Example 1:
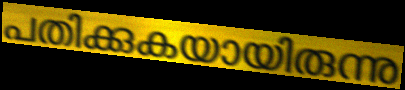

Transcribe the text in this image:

പതിക്കുകയായിരുന്നു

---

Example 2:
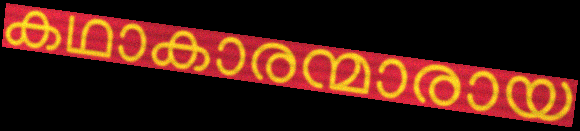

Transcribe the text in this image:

കഥാകാരന്മാരായ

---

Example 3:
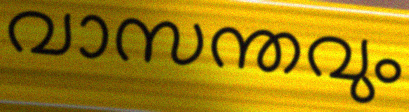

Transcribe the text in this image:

വാസന്തവും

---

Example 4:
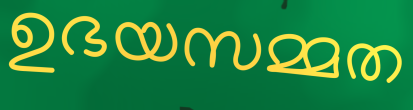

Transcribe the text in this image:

ഉഭയസമ്മത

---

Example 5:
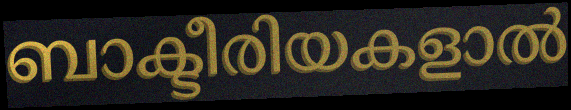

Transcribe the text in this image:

ബാക്ടീരിയകളാൽ